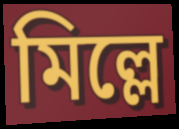
মিল্লে